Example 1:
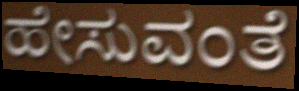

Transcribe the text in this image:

ಹೇಸುವಂತೆ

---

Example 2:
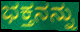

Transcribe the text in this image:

ಭಕ್ತನನ್ನು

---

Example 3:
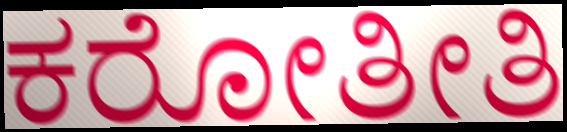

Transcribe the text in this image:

ಕರೋತೀತಿ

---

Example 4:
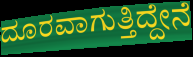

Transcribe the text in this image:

ದೂರವಾಗುತ್ತಿದ್ದೇನೆ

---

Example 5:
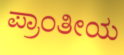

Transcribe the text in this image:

ಪ್ರಾಂತೀಯ